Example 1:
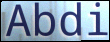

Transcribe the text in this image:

Abdi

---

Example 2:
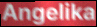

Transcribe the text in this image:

Angelika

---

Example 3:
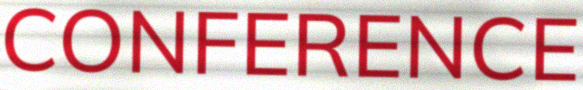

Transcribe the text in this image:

CONFERENCE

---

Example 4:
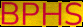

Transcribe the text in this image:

BPHS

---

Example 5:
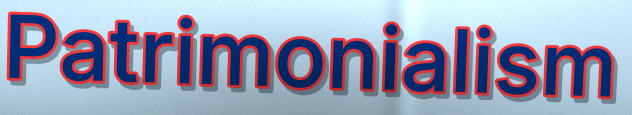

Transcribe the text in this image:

Patrimonialism